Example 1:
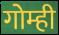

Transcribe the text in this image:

गोम्ही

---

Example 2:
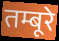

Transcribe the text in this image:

तम्बूरे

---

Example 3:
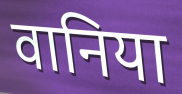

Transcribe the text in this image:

वानिया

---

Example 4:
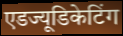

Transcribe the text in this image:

एडज्यूडिकेटिंग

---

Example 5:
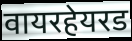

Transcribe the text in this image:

वायरहेयरड